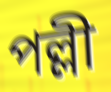
পল্লী